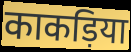
काकड़िया